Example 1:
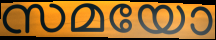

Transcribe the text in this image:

സമയോ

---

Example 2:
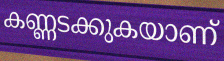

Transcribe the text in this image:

കണ്ണടക്കുകയാണ്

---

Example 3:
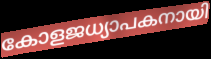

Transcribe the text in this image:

കോളജധ്യാപകനായി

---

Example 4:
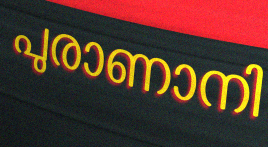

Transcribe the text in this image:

പുരാണാനി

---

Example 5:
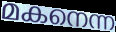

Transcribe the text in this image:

മകനെന്ന